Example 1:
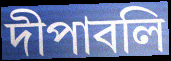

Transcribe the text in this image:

দীপাবলি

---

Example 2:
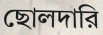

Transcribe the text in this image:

ছোলদারি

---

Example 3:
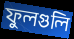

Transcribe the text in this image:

ফুলগুলি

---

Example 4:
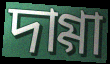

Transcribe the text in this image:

দাগ্গা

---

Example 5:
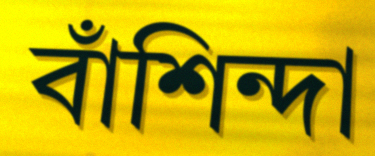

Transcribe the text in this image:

বাঁশিন্দা